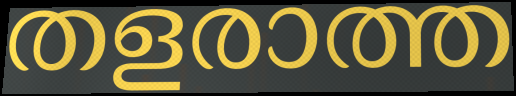
തളരാത്ത